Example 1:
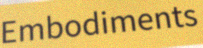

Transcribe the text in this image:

Embodiments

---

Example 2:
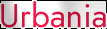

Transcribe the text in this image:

Urbania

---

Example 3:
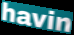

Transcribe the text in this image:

havin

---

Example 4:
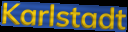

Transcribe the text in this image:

Karlstadt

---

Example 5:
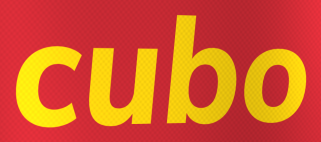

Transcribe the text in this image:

cubo